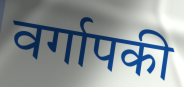
वर्गापकी